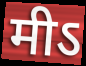
मीऽ